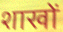
शाखों